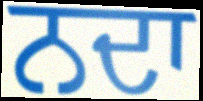
ਨਦਾ